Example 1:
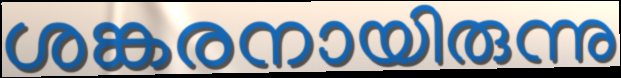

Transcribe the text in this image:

ശങ്കരനായിരുന്നു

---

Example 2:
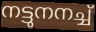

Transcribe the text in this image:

നട്ടുനനച്ച്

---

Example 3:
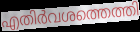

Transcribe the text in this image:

എതിർവശത്തെത്തി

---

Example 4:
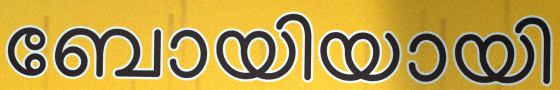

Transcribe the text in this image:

ബോയിയായി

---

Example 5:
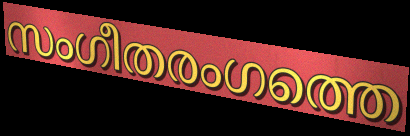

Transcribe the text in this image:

സംഗീതരംഗത്തെ